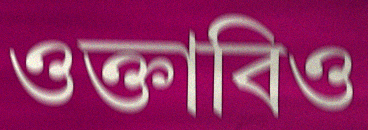
ওক্তাবিও